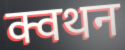
क्वथन